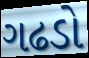
ગઢડો